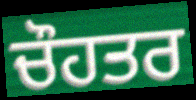
ਚੌਹਤਰ